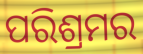
ପରିଶ୍ରମର